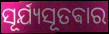
ସୂର୍ଯ୍ଯସୂତଵାର